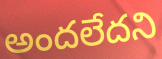
అందలేదని